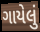
ગાયેલું